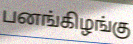
பனங்கிழங்கு